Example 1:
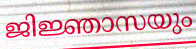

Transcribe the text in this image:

ജിജ്ഞാസയും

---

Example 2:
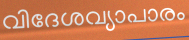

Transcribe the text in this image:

വിദേശവ്യാപാരം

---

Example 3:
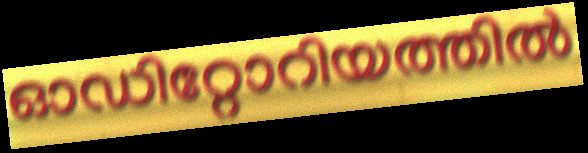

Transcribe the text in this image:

ഓഡിറ്റോറിയത്തിൽ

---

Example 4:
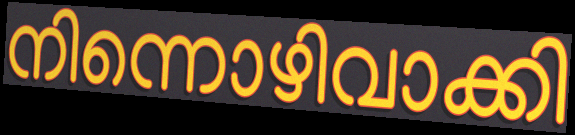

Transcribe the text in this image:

നിന്നൊഴിവാക്കി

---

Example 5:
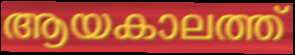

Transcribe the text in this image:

ആയകാലത്ത്